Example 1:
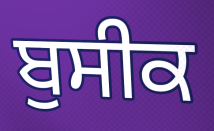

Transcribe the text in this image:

ਬੁਸੀਕ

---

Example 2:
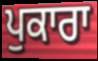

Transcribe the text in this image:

ਪੁਕਾਰਾ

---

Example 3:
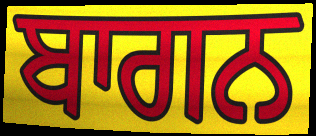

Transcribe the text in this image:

ਬਾਗਨ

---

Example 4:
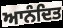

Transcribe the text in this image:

ਆਨੰਦਿਤ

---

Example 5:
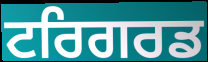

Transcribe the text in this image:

ਟਰਿਗਰਡ